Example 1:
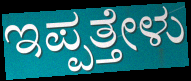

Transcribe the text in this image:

ಇಪ್ಪತ್ತೇಳು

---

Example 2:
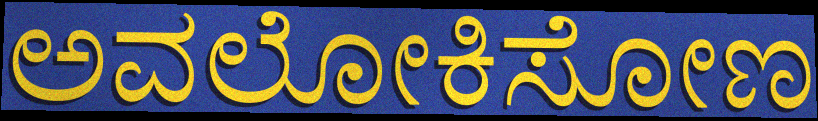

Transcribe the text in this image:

ಅವಲೋಕಿಸೋಣ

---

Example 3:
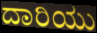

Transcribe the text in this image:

ದಾರಿಯು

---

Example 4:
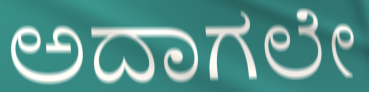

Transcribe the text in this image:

ಅದಾಗಲೇ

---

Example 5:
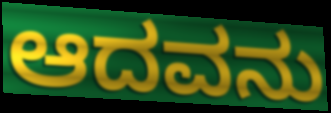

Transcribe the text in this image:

ಆದವನು